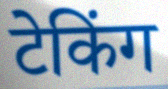
टेकिंग